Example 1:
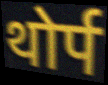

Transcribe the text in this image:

थोर्प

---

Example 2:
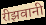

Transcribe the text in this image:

रीझवानी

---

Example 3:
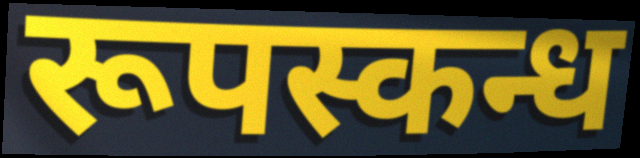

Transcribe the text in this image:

रूपस्कन्ध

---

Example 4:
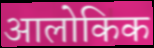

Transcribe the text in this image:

आलोकिक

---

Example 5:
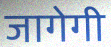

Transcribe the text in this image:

जागेगी